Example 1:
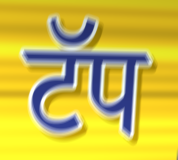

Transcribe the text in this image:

टॅप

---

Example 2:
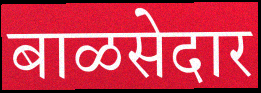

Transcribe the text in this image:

बाळसेदार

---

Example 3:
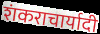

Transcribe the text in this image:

शंकराचार्यादी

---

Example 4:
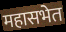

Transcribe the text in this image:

महासभेत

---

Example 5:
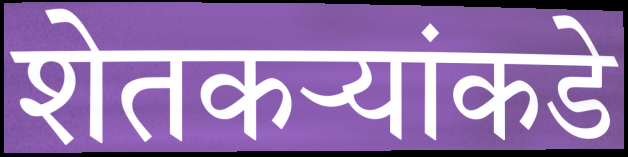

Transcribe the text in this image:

शेतकर्‍यांकडे